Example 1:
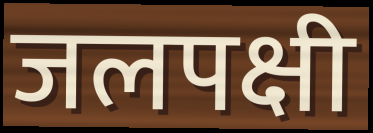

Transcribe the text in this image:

जलपक्षी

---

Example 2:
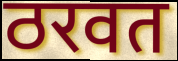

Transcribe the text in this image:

ठरवत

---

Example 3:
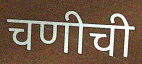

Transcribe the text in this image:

चणीची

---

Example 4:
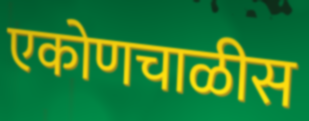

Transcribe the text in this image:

एकोणचाळीस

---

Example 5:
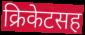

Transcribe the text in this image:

क्रिकेटसह